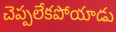
చెప్పలేకపోయాడు